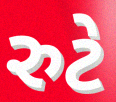
રુટે